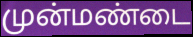
முன்மண்டை